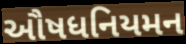
ઔષધનિયમન